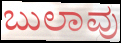
ಬುಲಾವು